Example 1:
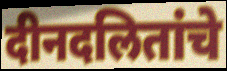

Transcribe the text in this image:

दीनदलितांचे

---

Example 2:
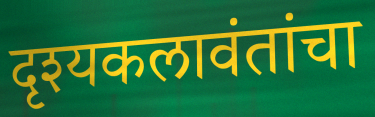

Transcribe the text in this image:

दृश्यकलावंतांचा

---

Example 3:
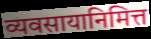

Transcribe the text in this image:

व्यवसायानिमित्त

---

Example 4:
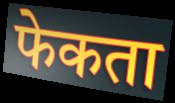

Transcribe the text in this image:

फेकता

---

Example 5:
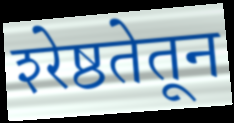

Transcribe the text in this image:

श्रेष्ठतेतून